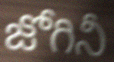
జోగినీ